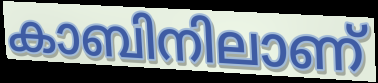
കാബിനിലാണ്